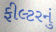
ફીલ્ટરનું